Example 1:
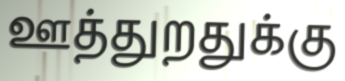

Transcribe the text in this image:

ஊத்துறதுக்கு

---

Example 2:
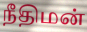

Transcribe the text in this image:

நீதிமன்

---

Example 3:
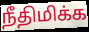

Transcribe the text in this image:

நீதிமிக்க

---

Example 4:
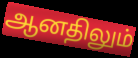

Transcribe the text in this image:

ஆனதிலும்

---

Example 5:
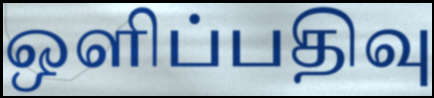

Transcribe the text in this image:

ஒளிப்பதிவு